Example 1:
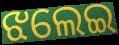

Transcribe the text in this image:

ଝଲେଇ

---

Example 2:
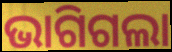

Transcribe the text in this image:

ଭାଗିଗଲା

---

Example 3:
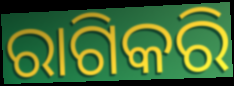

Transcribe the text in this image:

ରାଗିକରି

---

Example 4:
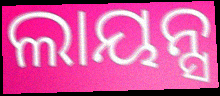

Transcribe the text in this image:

ଲାୟନ୍ସ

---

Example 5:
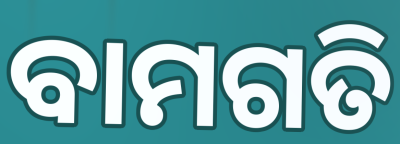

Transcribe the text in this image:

ବାମଗତି